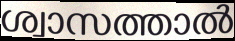
ശ്വാസത്താൽ